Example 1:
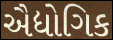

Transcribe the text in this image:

ઐદ્યોગિક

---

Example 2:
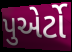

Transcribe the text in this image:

પુએર્ટો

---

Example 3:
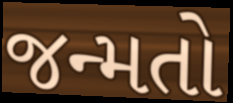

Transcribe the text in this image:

જન્મતો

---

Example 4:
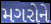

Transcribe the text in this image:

મગરોને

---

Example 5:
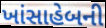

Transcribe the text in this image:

ખાંસાહેબની